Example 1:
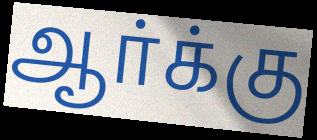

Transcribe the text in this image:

ஆர்க்கு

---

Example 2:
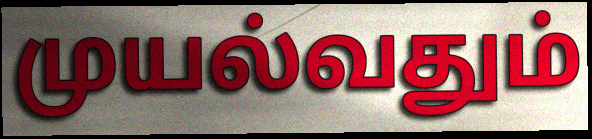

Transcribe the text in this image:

முயல்வதும்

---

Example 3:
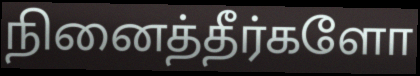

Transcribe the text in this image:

நினைத்தீர்களோ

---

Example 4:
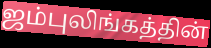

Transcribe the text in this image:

ஜம்புலிங்கத்தின்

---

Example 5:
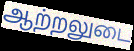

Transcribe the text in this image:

ஆற்றலுடை